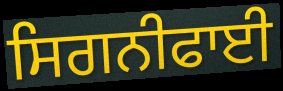
ਸਿਗਨੀਫਾਈ